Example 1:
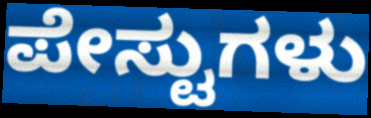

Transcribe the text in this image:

ಪೇಸ್ಟುಗಳು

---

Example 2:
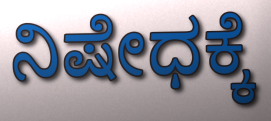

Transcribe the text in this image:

ನಿಷೇಧಕ್ಕೆ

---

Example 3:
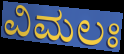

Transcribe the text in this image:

ವಿಮಲಃ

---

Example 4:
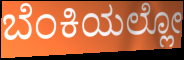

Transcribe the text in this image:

ಬೆಂಕಿಯಲ್ಲೋ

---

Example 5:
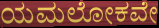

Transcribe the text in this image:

ಯಮಲೋಕವೇ